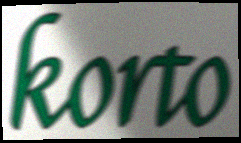
korto